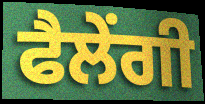
ਫੈਲੇਂਗੀ